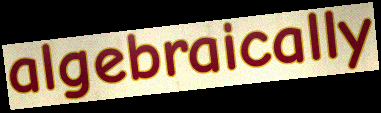
algebraically